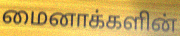
மைனாக்களின்